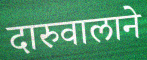
दारुवालाने